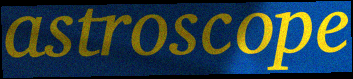
astroscope